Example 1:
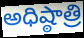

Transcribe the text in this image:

అధిష్ఠాత్రి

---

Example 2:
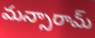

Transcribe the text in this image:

మన్సారామ్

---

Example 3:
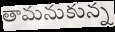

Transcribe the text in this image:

తామనుకున్న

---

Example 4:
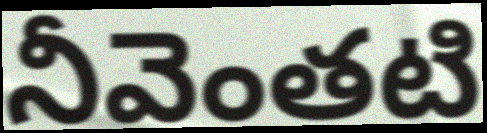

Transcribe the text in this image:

నీవెంతటి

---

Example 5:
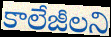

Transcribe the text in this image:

కాలేజీలని